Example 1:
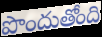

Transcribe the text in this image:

పొందుతోంది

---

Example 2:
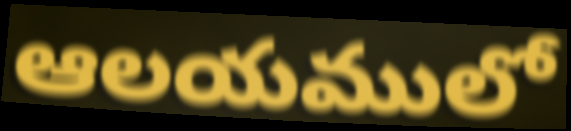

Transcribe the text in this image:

ఆలయములో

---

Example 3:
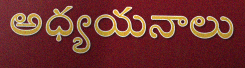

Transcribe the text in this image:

అధ్యయనాలు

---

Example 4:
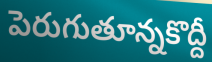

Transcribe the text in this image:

పెరుగుతూన్నకొద్దీ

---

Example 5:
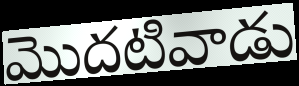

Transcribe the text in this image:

మొదటివాడు